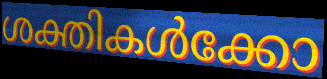
ശക്തികൾക്കോ